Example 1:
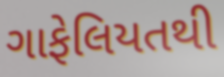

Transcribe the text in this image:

ગાફેલિયતથી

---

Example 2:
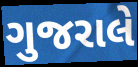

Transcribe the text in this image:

ગુજરાલે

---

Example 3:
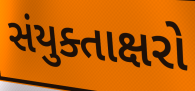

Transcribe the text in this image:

સંયુક્તાક્ષરો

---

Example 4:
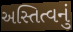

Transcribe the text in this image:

અસ્તિત્વનું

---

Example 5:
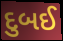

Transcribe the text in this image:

દુબઈ